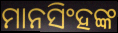
ମାନସିଂହଙ୍କ